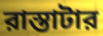
রাস্তাটার